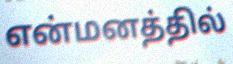
என்மனத்தில்